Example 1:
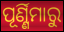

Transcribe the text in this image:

ପୂର୍ଣ୍ଣିମାରୁ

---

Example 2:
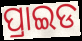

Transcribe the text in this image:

ପ୍ରାଇଡ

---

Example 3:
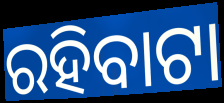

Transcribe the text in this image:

ରହିବାଟା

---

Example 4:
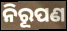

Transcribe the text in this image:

ନିରୂପଣ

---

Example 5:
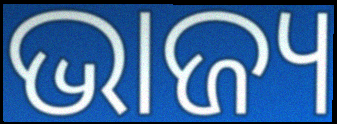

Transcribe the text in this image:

ଭାଜ୍ୟ